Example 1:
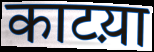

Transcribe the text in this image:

काटय़ा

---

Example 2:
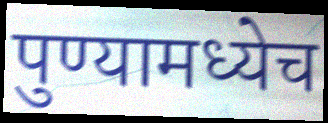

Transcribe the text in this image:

पुण्यामध्येच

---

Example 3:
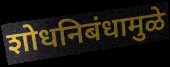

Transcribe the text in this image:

शोधनिबंधामुळे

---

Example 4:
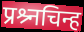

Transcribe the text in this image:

प्रश्र्नचिन्ह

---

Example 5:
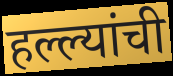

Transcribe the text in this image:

हल्ल्यांची